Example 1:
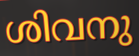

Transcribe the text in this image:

ശിവനു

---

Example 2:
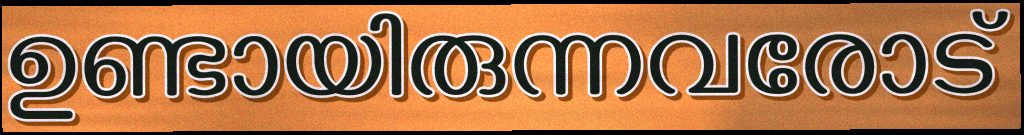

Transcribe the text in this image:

ഉണ്ടായിരുന്നവരോട്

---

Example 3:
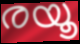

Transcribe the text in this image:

രയൂ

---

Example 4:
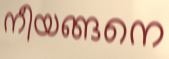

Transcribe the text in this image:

നീയങ്ങനെ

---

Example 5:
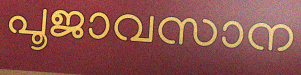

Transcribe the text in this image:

പൂജാവസാന